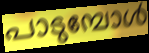
പാടുമ്പോൾ